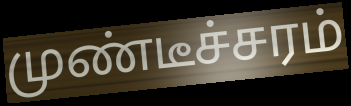
முண்டீச்சரம்